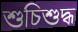
শুচিশুদ্ধ